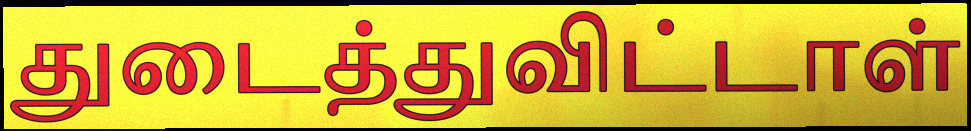
துடைத்துவிட்டாள்